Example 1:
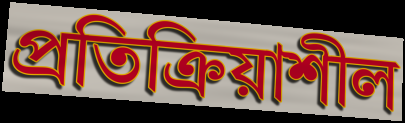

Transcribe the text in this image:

প্ৰতিক্ৰিয়াশীল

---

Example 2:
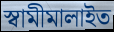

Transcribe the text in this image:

স্বামীমালাইত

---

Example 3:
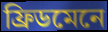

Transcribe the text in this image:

ফ্ৰিডমেনে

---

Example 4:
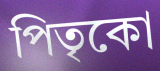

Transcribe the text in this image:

পিতৃকো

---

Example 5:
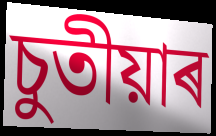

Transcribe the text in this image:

চুতীয়াৰ